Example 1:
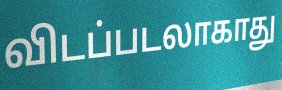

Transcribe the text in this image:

விடப்படலாகாது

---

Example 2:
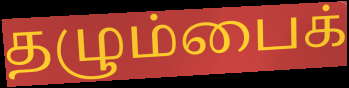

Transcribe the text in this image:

தழும்பைக்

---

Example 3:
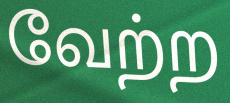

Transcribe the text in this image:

வேற்ற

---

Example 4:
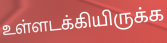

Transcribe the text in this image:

உள்ளடக்கியிருக்க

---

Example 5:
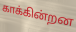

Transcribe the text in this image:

காக்கின்றன